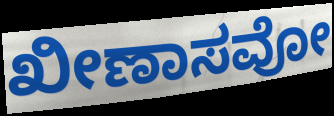
ಖೀಣಾಸವೋ